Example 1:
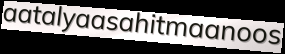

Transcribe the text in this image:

aatalyaasahitmaanoos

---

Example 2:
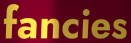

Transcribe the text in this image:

fancies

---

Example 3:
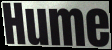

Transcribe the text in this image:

Hume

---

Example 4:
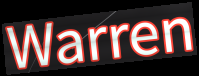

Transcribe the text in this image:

Warren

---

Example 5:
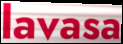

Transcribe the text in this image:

lavasa